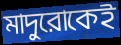
মাদুরোকেই